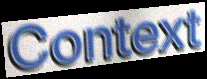
Context